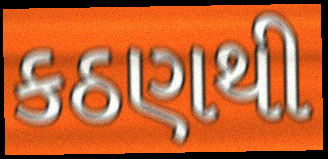
કઠણથી